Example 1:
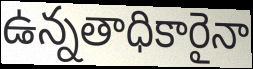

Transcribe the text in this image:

ఉన్నతాధికారైనా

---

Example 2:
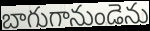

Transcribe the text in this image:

బాగుగానుండెను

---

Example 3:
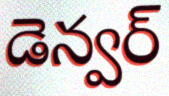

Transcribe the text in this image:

డెన్వర్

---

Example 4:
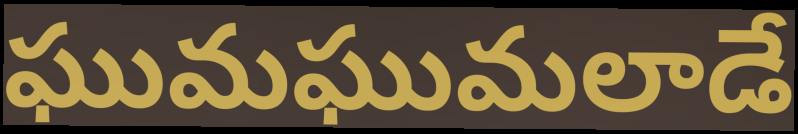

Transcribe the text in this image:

ఘుమఘుమలాడే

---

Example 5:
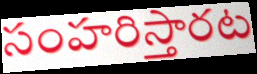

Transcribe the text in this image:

సంహరిస్తారట